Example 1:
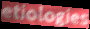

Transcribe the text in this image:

etiologies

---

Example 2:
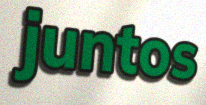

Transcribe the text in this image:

juntos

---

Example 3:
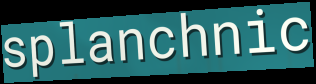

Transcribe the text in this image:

splanchnic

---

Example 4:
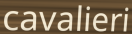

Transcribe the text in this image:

cavalieri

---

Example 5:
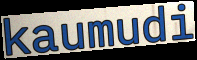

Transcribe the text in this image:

kaumudi